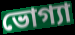
ভোগ্যা